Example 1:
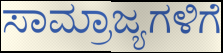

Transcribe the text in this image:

ಸಾಮ್ರಾಜ್ಯಗಳಿಗೆ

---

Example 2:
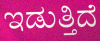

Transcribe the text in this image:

ಇಡುತ್ತಿದೆ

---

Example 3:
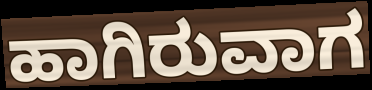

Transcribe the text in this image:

ಹಾಗಿರುವಾಗ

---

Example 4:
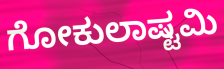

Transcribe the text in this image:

ಗೋಕುಲಾಷ್ಟಮಿ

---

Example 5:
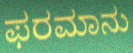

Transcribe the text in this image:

ಫರಮಾನು